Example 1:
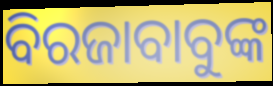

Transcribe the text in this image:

ବିରଜାବାବୁଙ୍କ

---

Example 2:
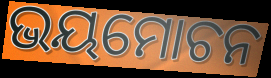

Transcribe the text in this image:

ଭୟମୋଚନ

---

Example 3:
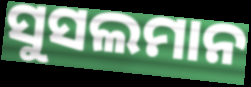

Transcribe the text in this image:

ସୁସଲମାନ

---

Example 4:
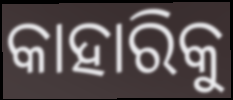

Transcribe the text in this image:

କାହାରିକୁ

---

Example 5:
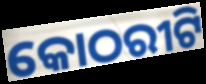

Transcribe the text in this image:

କୋଠରୀଟି